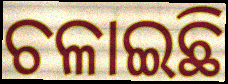
ଚଳାଇଛି